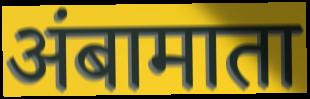
अंबामाता